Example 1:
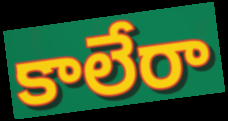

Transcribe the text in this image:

కాలేరా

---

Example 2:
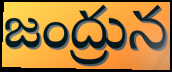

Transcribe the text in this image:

జంద్రున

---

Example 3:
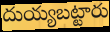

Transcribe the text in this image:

దుయ్యబట్టారు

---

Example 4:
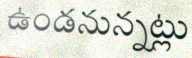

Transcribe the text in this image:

ఉండనున్నట్లు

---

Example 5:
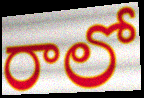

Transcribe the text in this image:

రాలో